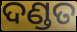
ଦଣ୍ଡତ